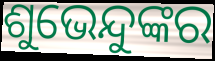
ଶୁଭେନ୍ଦୁଙ୍କର